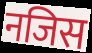
नजिस